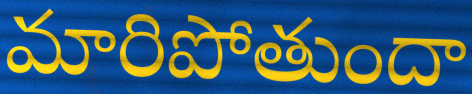
మారిపోతుందా